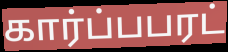
கார்ப்பபரட்